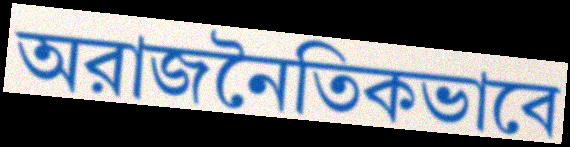
অরাজনৈতিকভাবে